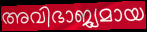
അവിഭാജ്യമായ